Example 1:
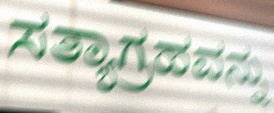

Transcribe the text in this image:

ಸತ್ಯಾಗ್ರಹವನ್ನು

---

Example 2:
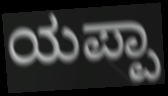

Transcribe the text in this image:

ಯಪ್ಪಾ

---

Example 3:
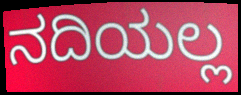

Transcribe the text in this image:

ನದಿಯಲ್ಲ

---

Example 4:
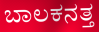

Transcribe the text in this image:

ಬಾಲಕನತ್ತ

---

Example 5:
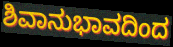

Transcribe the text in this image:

ಶಿವಾನುಭಾವದಿಂದ